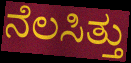
ನೆಲಸಿತ್ತು